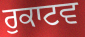
ਰੁਕਾਟਵ